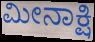
ಮೀನಾಕ್ಷಿ